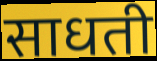
साधती